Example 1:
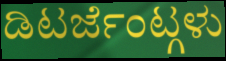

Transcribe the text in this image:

ಡಿಟರ್ಜೆಂಟ್ಗಳು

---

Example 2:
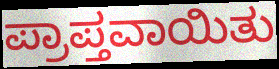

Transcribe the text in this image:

ಪ್ರಾಪ್ತವಾಯಿತು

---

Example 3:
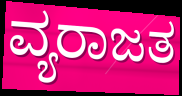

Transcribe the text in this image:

ವ್ಯರಾಜತ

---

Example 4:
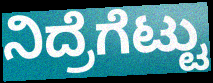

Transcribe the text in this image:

ನಿದ್ರೆಗೆಟ್ಟು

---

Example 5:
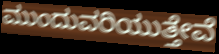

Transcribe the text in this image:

ಮುಂದುವರಿಯುತ್ತೇವೆ